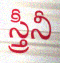
స్త్రీనీ